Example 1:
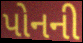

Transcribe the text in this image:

પોનની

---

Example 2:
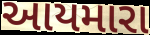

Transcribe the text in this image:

આયમારા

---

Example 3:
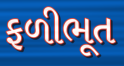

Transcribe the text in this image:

ફળીભૂત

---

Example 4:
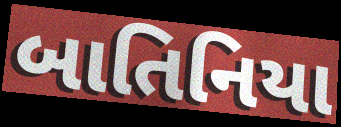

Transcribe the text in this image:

બાતિનિયા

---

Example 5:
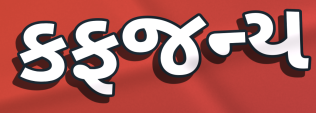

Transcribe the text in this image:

કફજન્ય